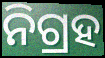
ନିଗ୍ରହ